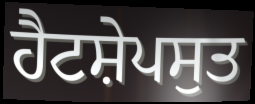
ਹੈਟਸ਼ੇਪਸੁਤ